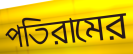
পতিরামের